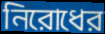
নিরোধের